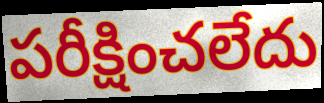
పరీక్షించలేదు